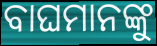
ବାଘମାନଙ୍କୁ